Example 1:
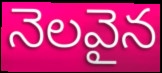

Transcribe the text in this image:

నెలవైన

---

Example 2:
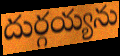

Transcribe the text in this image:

దుర్గయ్యను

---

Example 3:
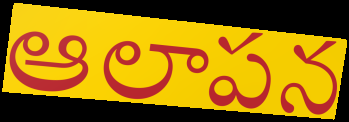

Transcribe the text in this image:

ఆలాపన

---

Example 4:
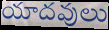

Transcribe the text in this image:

యాదవులు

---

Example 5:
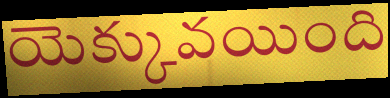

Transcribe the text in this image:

యెక్కువయింది